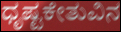
ಧೃಷ್ಟಕೇತುವಿನ